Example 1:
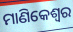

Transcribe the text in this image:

ମାଣିକେଶ୍ଵର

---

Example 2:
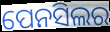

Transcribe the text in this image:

ପେନସିଲର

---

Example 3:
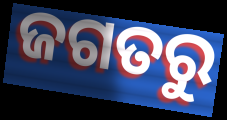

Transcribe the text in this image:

ଜଗତରୁ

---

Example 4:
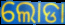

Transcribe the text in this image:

ଲୋଡା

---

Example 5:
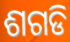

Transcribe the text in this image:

ଶଗଡି